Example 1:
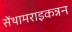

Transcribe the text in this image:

सेंथामराइकन्नन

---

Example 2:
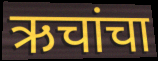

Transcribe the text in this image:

ऋचांचा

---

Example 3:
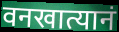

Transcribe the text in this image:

वनखात्यानं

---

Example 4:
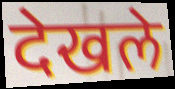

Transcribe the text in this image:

देखले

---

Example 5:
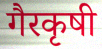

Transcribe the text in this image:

गैरकृषी